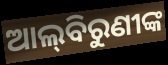
ଆଲ୍‌ବିରୁଣୀଙ୍କ